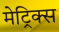
मेट्रिक्‍स